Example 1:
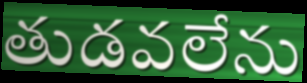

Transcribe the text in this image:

తుడవలేను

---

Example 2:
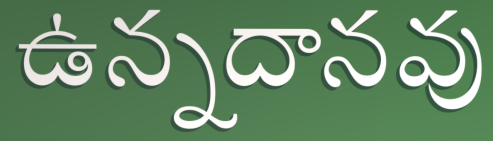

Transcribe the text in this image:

ఉన్నదానవు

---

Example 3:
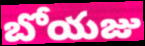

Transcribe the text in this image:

బోయజు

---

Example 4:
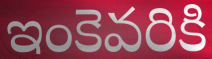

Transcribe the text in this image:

ఇంకెవరికి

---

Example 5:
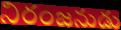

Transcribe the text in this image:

నిరంజనుడు